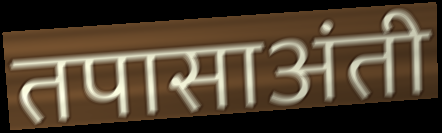
तपासाअंती